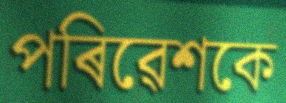
পৰিৱেশকে